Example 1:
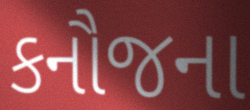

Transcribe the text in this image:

કનૌજના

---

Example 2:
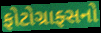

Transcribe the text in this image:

ફોટોગ્રાફ્સનો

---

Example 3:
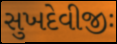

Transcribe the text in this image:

સુખદેવીજીઃ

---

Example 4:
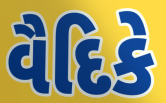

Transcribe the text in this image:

વૈદિકે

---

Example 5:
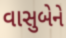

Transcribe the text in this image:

વાસુબેને